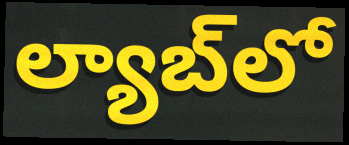
ల్యాబ్‌లో